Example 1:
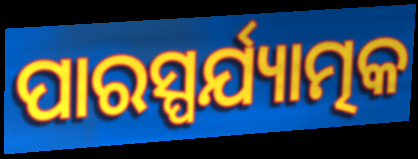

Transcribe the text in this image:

ପାରସ୍ପର୍ଯ୍ୟାତ୍ମକ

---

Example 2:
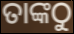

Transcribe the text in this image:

ତାଙ୍କଠୁ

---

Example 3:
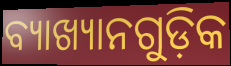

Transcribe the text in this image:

ବ୍ୟାଖ୍ୟାନଗୁଡ଼ିକ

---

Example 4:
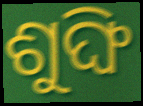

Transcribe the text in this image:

ଶୁଙ୍ଘି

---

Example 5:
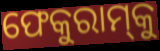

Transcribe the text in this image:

ଫେକୁରାମ୍‌କୁ